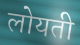
लोयती